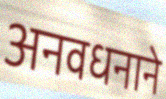
अनवधनाने